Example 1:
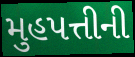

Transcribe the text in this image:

મુહપત્તીની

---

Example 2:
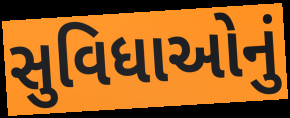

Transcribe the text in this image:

સુવિધાઓનું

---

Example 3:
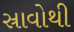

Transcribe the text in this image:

સ્રાવોથી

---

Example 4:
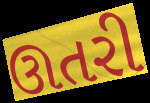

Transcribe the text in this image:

ઊતરી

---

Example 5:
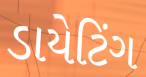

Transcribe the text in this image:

ડાયેટિંગ